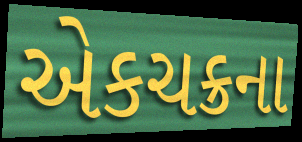
એકચક્રના